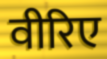
वीरिए